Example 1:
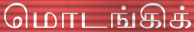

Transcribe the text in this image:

மொடங்கிக்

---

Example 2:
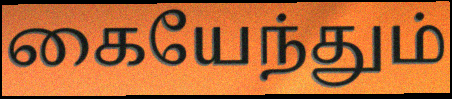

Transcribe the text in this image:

கையேந்தும்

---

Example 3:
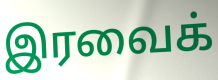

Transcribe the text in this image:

இரவைக்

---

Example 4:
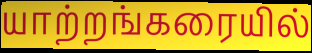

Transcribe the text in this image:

யாற்றங்கரையில்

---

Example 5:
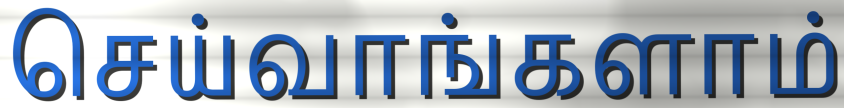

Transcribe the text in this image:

செய்வாங்களாம்